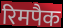
रिमपैक